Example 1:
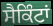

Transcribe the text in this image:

ਸੈਕਿੰਟਾਂ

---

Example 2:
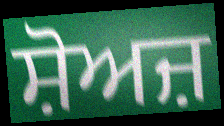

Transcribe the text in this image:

ਸ਼ੋਅਜ਼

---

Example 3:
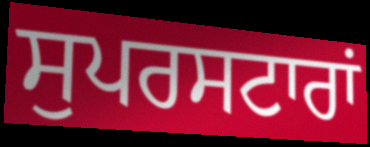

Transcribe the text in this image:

ਸੁਪਰਸਟਾਰਾਂ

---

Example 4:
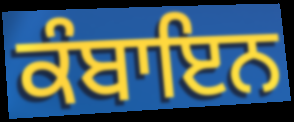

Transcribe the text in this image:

ਕੰਬਾਇਨ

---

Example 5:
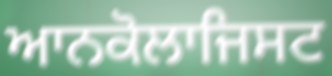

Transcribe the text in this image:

ਆਨਕੋਲਾਜਿਸਟ